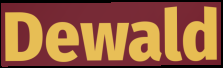
Dewald